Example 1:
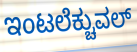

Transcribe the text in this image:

ಇಂಟಲೆಕ್ಚುವಲ್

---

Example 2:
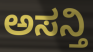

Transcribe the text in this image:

ಅಸನ್ತಿ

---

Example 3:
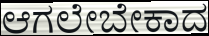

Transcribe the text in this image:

ಆಗಲೇಬೇಕಾದ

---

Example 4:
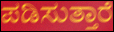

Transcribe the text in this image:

ಪಡಿಸುತ್ತಾರೆ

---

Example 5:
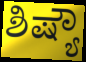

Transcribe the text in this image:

ಶಿಷ್ಯೌ